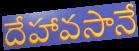
దేహావసానే